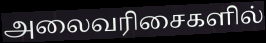
அலைவரிசைகளில்